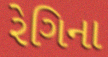
રેગિના